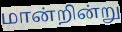
மான்றின்று